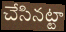
చేసినట్టా